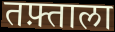
तफ़्ताला